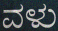
ವಳು